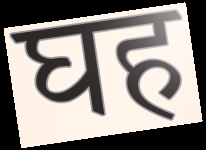
घह